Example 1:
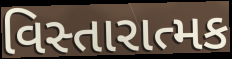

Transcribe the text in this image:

વિસ્તારાત્મક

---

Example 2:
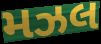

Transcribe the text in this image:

મઝલ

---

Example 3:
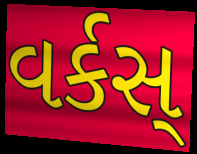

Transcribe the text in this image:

વર્કસ્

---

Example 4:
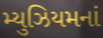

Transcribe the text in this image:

મ્યુઝિયમનાં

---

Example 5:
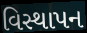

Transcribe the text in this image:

વિસ્થાપન